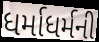
ધર્માધર્મની